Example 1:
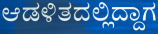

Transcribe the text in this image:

ಆಡಳಿತದಲ್ಲಿದ್ದಾಗ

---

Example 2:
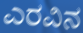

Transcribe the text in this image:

ಎರವಿನ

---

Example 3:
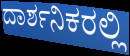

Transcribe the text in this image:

ದಾರ್ಶನಿಕರಲ್ಲಿ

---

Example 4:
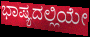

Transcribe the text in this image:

ಭಾಷ್ಯದಲ್ಲಿಯೇ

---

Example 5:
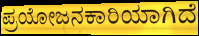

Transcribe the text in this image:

ಪ್ರಯೋಜನಕಾರಿಯಾಗಿದೆ